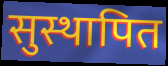
सुस्थापित